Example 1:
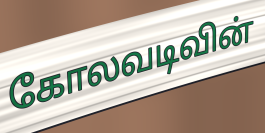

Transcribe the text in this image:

கோலவடிவின்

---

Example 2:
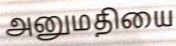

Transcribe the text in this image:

அனுமதியை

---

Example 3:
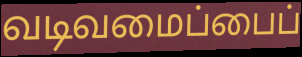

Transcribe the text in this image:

வடிவமைப்பைப்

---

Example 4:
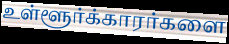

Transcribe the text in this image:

உள்ளூர்க்காரர்களை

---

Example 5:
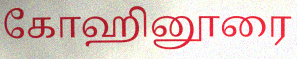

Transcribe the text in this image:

கோஹினூரை